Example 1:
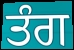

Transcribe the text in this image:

ਤੰਗ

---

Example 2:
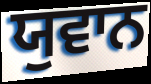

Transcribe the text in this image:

ਯੁਵਾਨ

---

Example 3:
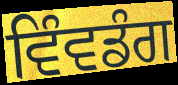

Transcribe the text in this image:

ਵਿੰਵਡੰਗ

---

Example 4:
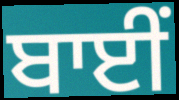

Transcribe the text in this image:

ਬਾਈਂ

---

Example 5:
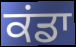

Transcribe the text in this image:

ਕਂਡਾ